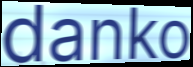
danko